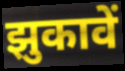
झुकावें